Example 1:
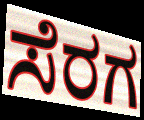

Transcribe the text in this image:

ಸೆರಗ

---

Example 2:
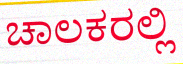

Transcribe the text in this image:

ಚಾಲಕರಲ್ಲಿ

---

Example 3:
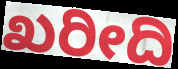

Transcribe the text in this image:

ಖರೀದಿ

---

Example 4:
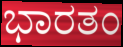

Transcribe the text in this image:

ಭಾರತಂ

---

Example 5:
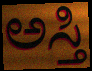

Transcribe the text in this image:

ಅಸ್ತಿ